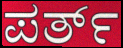
ಪರ್ತ್